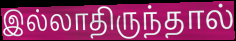
இல்லாதிருந்தால்